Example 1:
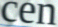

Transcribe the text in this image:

cen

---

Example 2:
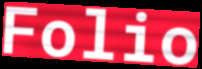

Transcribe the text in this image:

Folio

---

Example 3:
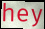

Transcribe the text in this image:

hey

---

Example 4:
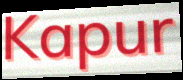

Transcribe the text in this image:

Kapur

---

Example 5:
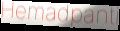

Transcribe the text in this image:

Hemadpanti